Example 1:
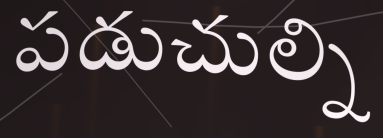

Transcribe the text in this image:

పడుచుల్ని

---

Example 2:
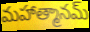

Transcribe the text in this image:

మహాత్మానమ్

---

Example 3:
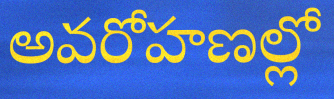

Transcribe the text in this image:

అవరోహణల్లో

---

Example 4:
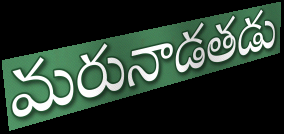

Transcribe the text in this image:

మరునాడతడు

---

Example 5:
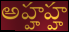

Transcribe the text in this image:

అహ్హహ్హ